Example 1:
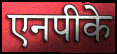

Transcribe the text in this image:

एनपीके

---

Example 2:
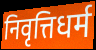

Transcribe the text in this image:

निवृत्तिधर्म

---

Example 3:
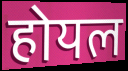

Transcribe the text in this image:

होयल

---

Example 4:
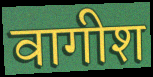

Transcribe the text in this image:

वागीश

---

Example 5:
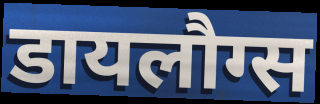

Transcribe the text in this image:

डायलौग्स